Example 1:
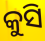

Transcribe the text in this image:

କୁସି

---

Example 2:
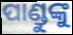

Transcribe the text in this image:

ପାଣ୍ଡୁଙ୍କୁ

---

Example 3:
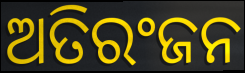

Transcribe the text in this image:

ଅତିରଂଜନ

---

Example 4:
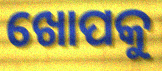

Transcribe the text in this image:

ଖୋପକୁ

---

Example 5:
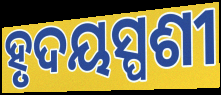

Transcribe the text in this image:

ହୃଦୟସ୍ପଶୀ